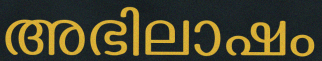
അഭിലാഷം